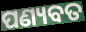
ପଣ୍ୟବତ